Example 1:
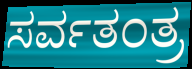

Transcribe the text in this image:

ಸರ್ವತಂತ್ರ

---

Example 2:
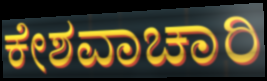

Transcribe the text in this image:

ಕೇಶವಾಚಾರಿ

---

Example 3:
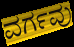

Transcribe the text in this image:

ವರ್ಗವು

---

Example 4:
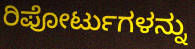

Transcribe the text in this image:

ರಿಪೋರ್ಟುಗಳನ್ನು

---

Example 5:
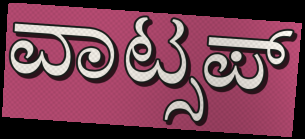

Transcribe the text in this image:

ವಾಟ್ಸಪ್